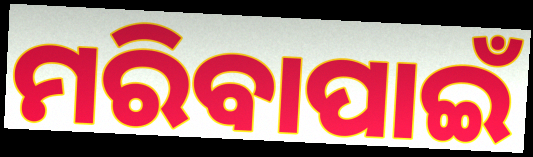
ମରିବାପାଇଁ